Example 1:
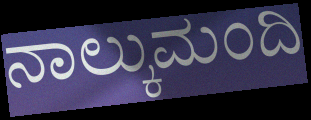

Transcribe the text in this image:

ನಾಲ್ಕುಮಂದಿ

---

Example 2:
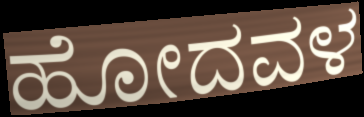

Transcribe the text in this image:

ಹೋದವಳ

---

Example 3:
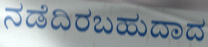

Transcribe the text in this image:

ನಡೆದಿರಬಹುದಾದ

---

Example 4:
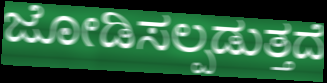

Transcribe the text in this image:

ಜೋಡಿಸಲ್ಪಡುತ್ತದೆ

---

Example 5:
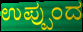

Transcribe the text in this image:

ಉಪ್ಪುಂದ